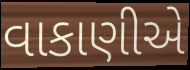
વાકાણીએ